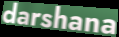
darshana